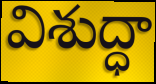
విశుద్ధా